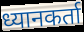
ध्यानकर्ता